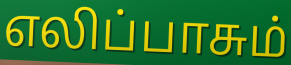
எலிப்பாசும்